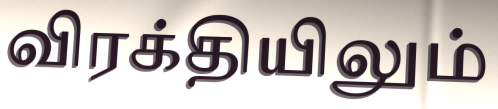
விரக்தியிலும்